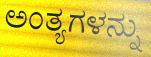
ಅಂತ್ಯಗಳನ್ನು